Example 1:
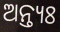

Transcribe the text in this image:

ଅନ୍ତ୍ୟଃ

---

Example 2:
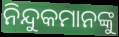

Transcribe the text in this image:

ନିନ୍ଦୁକମାନଙ୍କୁ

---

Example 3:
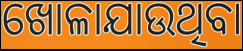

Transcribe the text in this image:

ଖୋଳାଯାଉଥିବା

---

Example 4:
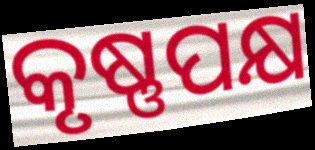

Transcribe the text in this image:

କୃଷ୍ଣପକ୍ଷ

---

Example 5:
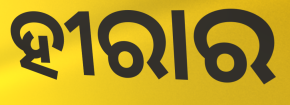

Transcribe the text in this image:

ହୀରାର